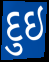
દુઇ